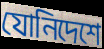
যোনিদেশে